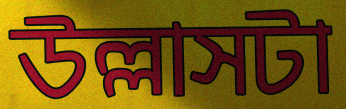
উল্লাসটা